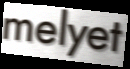
melyet